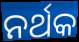
ନର୍ଥକ